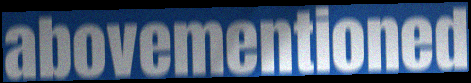
abovementioned